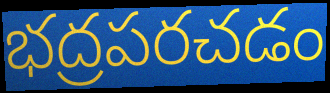
భద్రపరచడం